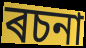
ৰচনা